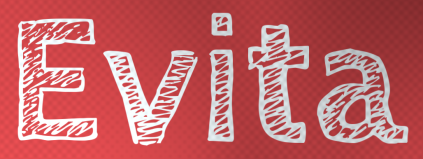
Evita